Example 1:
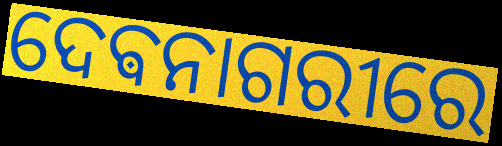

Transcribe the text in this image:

ଦେଵନାଗରୀରେ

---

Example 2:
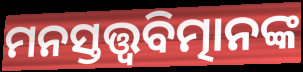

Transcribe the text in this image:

ମନସ୍ତତ୍ତ୍ବବିତ୍ମାନଙ୍କ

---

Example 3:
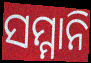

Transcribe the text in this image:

ସମ୍ମାନି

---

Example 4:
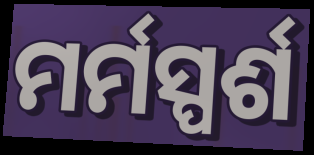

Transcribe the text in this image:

ମର୍ମସ୍ପର୍ଶ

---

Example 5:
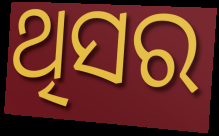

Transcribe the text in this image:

ଥିସର